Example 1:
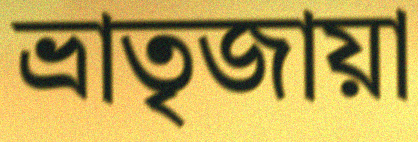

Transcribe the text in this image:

ভ্রাতৃজায়া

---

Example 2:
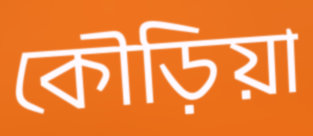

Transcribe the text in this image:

কৌড়িয়া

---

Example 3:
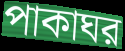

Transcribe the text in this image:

পাকাঘর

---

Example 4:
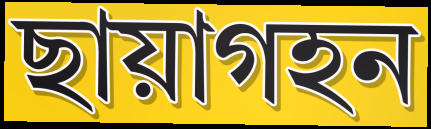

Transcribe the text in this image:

ছায়াগহন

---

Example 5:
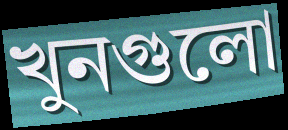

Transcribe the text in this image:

খুনগুলো